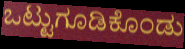
ಒಟ್ಟುಗೂಡಿಕೊಂಡು